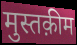
मुस्तक़ीम